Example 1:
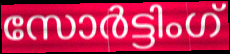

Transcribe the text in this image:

സോർട്ടിംഗ്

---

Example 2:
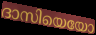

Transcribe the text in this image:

ദാസിയെയോ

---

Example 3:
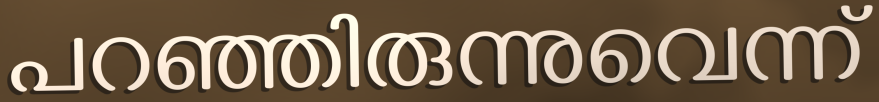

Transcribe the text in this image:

പറഞ്ഞിരുന്നുവെന്ന്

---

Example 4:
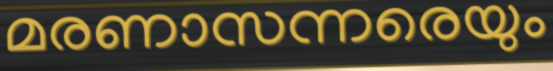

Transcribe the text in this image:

മരണാസന്നരെയും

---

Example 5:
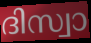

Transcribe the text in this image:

ദിസ്വാ